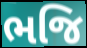
ભજિ